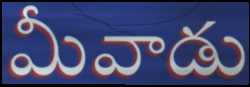
మీవాడు